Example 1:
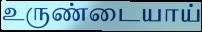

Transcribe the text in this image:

உருண்டையாய்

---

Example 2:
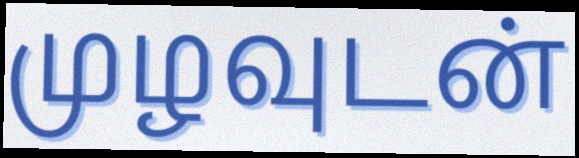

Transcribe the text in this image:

முழவுடன்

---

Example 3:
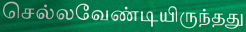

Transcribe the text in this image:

செல்லவேண்டியிருந்தது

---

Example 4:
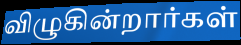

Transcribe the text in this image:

விழுகின்றார்கள்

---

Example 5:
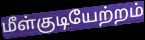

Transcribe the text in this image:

மீள்குடியேற்றம்